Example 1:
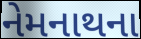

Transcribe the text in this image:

નેમનાથના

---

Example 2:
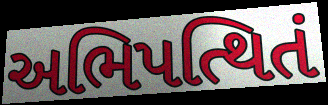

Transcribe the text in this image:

અભિપત્થિતં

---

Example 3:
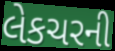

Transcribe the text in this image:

લેકચરની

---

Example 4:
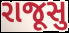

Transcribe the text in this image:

રાજૂસુ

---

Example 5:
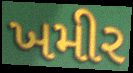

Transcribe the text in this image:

ખમીર